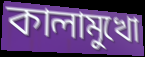
কালামুখো